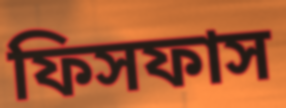
ফিসফাস